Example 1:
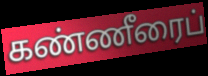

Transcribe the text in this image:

கண்ணீரைப்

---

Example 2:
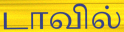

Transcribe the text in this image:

டாவில்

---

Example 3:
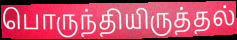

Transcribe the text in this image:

பொருந்தியிருத்தல்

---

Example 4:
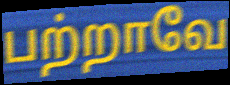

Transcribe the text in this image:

பற்றாவே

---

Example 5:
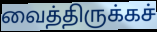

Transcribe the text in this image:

வைத்திருக்கச்